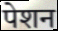
पेशन